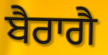
ਬੈਰਾਗੈ